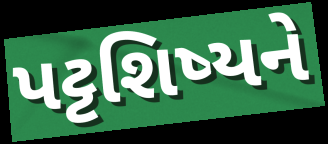
પટ્ટશિષ્યને